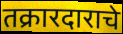
तक्रारदाराचे